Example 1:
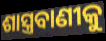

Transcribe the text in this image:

ଶାସ୍ତ୍ରବାଣୀକୁ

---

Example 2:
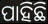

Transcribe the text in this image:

ପାହିଛି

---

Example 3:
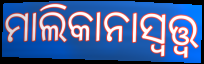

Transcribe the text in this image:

ମାଲିକାନାସ୍ୱତ୍ତ୍ୱ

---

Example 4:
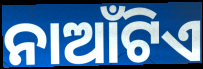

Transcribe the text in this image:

ନାଆଁଟିଏ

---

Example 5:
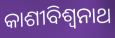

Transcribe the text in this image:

କାଶୀବିଶ୍ଵନାଥ